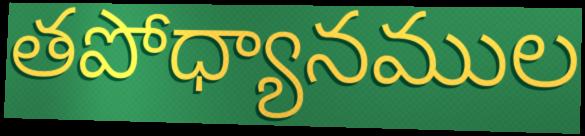
తపోధ్యానముల